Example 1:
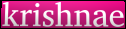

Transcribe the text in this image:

krishnae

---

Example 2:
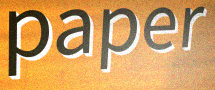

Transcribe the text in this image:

paper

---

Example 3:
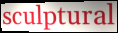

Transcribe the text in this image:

sculptural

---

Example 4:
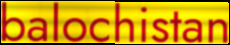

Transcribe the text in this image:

balochistan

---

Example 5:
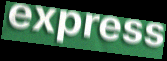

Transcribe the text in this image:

express